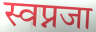
स्वप्नजा